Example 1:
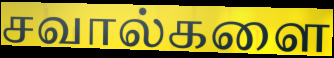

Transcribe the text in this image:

சவால்களை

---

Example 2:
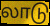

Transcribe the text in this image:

லாடு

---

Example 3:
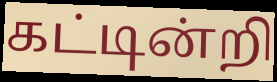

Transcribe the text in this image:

கட்டின்றி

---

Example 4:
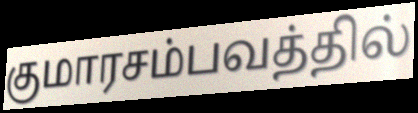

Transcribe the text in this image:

குமாரசம்பவத்தில்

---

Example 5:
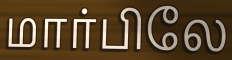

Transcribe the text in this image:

மார்பிலே